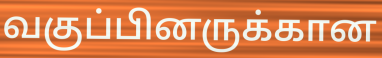
வகுப்பினருக்கான